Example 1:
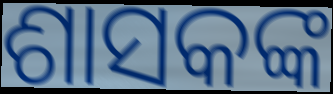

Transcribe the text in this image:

ଶାସକଙ୍କ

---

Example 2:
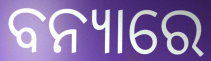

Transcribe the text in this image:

ବନ୍ୟାରେ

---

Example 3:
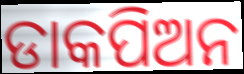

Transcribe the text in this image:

ଡାକପିଅନ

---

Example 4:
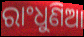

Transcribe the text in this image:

ରାଂଧୁଣିଆ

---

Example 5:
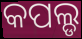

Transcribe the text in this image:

କପଲ୍ଡ